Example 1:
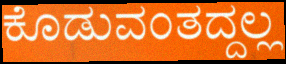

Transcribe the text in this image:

ಕೊಡುವಂತದ್ದಲ್ಲ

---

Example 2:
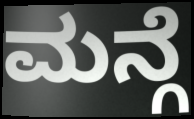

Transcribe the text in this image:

ಮನ್ಗೆ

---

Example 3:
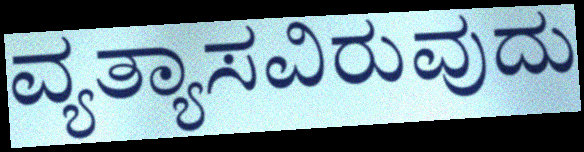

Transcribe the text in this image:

ವ್ಯತ್ಯಾಸವಿರುವುದು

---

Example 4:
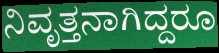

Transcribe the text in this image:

ನಿವೃತ್ತನಾಗಿದ್ದರೂ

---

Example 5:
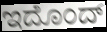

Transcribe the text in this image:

ಇದೊಂದ್